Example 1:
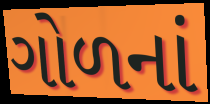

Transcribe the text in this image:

ગોળનાં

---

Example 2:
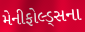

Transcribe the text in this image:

મેનીફોલ્ડ્સના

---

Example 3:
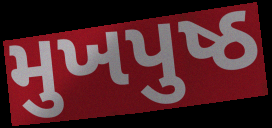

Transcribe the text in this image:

મુખપુષ્ઠ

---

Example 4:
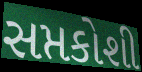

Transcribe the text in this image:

સપ્તકોશી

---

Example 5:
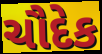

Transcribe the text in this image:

ચૌદેક